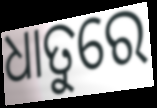
ଧାତୁରେ